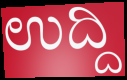
ಉದ್ದಿ